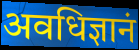
अवधिज्ञानं